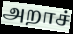
அறாச்